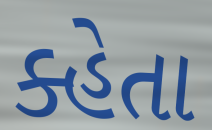
ક્હેતા